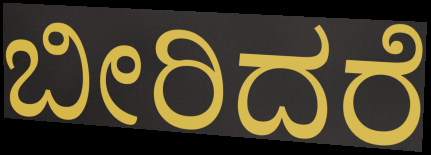
ಬೀರಿದರೆ